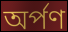
অৰ্পণ